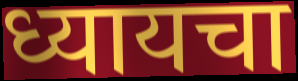
ध्यायचा